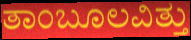
ತಾಂಬೂಲವಿತ್ತು